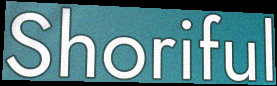
Shoriful